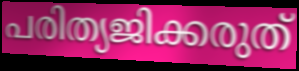
പരിത്യജിക്കരുത്